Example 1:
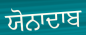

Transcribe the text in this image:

ਯੋਨਾਦਾਬ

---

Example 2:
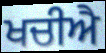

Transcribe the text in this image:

ਖਚੀਐ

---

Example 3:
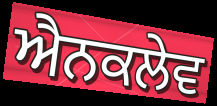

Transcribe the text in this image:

ਐਨਕਲੇਵ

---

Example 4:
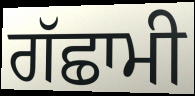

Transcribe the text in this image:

ਗੱਛਾਮੀ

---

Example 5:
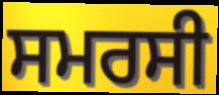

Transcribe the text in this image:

ਸਮਰਸੀ